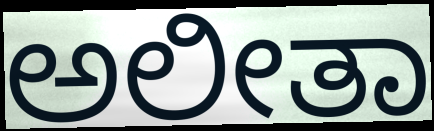
ಅಲೀತಾ